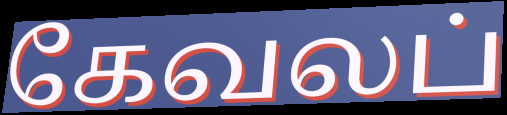
கேவலப்